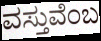
ವಸ್ತುವೆಂಬ